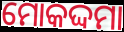
ମୋକଦ୍ଦମା